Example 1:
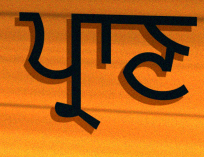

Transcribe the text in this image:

ਪ੍ਰਾਣ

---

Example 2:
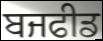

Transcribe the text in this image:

ਬਜਫੀਡ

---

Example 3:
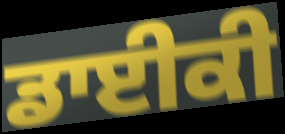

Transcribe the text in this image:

ਡਾਈਕੀ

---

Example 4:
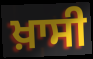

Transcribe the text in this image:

ਖ਼ਾਸੀ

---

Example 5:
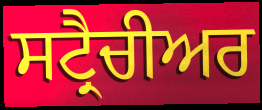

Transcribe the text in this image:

ਸਟ੍ਰੈਚੀਅਰ